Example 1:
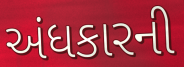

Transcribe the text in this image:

અંધકારની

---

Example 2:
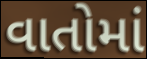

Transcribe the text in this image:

વાતોમાં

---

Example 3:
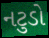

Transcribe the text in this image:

નટુડો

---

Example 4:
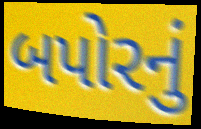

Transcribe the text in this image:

બપોરનું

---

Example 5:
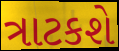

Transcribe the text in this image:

ત્રાટકશે